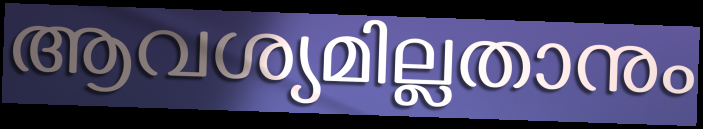
ആവശ്യമില്ലതാനും